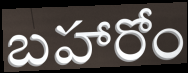
బహారోం